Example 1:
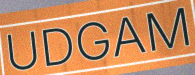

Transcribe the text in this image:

UDGAM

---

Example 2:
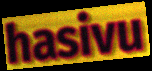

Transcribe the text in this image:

hasivu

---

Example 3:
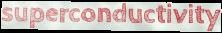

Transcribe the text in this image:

superconductivity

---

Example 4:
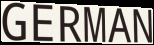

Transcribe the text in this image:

GERMAN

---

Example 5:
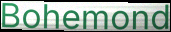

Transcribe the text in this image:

Bohemond